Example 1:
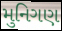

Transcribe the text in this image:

મુનિગણ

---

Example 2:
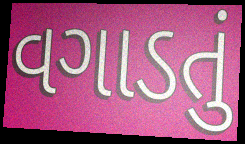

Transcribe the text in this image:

વગાડતું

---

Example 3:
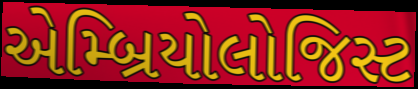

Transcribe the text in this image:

એમ્બ્રિયોલોજિસ્ટ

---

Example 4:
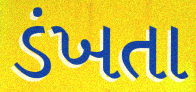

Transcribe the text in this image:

ડંખતા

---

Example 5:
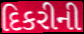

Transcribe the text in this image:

દિકરીની